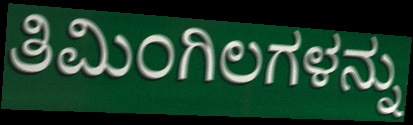
ತಿಮಿಂಗಿಲಗಳನ್ನು